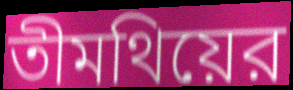
তীমথিয়ের